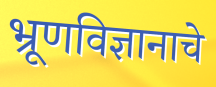
भ्रूणविज्ञानाचे